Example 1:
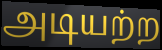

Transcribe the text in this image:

அடியற்ற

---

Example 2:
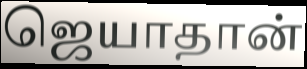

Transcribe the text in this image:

ஜெயாதான்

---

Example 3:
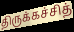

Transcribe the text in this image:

திருக்கச்சித்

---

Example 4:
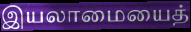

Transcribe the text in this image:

இயலாமையைத்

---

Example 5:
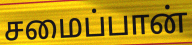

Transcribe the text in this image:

சமைப்பான்